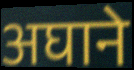
अघाने